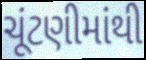
ચૂંટણીમાંથી